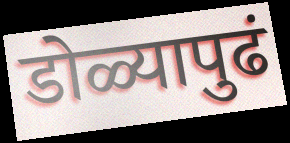
डोळ्यापुढं